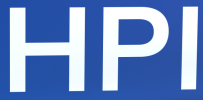
HPI